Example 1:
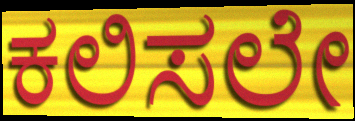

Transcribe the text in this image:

ಕಲಿಸಲೇ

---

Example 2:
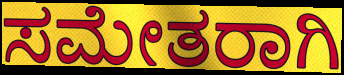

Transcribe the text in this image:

ಸಮೇತರಾಗಿ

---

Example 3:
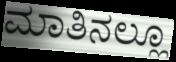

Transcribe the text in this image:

ಮಾತಿನಲ್ಲೂ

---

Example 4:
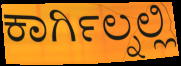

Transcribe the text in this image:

ಕಾರ್ಗಿಲ್ನಲ್ಲಿ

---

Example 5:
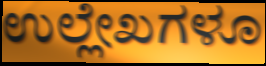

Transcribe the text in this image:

ಉಲ್ಲೇಖಗಳೂ